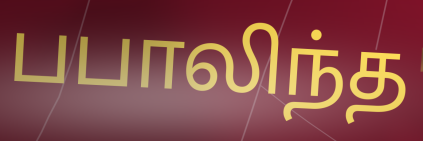
பபாலிந்த